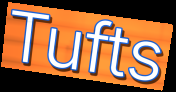
Tufts